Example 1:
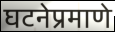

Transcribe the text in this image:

घटनेप्रमाणे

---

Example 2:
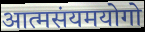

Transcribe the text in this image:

आत्मसंयमयोगो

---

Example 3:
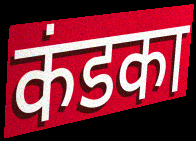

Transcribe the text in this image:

कंडका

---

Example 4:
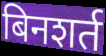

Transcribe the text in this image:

बिनशर्त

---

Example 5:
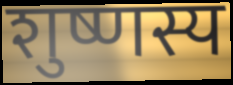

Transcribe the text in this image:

शुष्णस्य